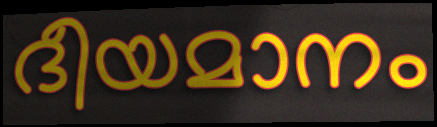
ദീയമാനം